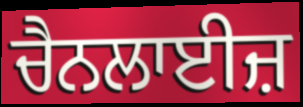
ਚੈਨਲਾਈਜ਼